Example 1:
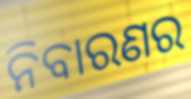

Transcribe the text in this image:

ନିବାରଣର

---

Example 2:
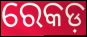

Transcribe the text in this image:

ରେକଡ଼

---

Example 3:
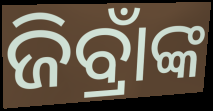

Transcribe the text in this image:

ଜିବ୍ରାଁଙ୍କ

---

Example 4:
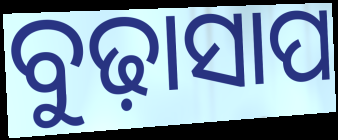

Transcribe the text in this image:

ବୁଢ଼ାସାପ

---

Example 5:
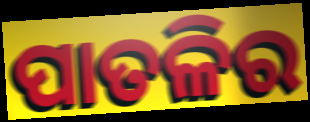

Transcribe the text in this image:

ପାତଳିର